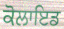
ਕੋਲਾਇਡ